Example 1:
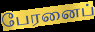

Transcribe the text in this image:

பேரனைப்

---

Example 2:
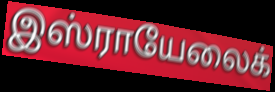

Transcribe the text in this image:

இஸ்ராயேலைக்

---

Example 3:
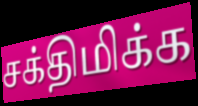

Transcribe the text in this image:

சக்திமிக்க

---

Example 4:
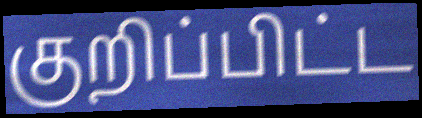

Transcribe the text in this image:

குறிப்பிட்ட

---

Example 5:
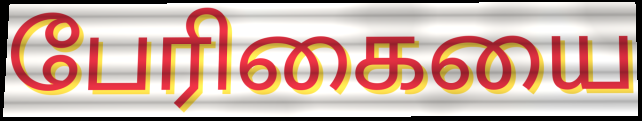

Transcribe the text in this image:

பேரிகையை